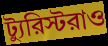
ট্যুরিস্টরাও